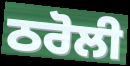
ਠਰੋਲੀ